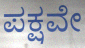
ಪಕ್ಷವೇ